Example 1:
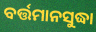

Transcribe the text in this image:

ବର୍ତ୍ତମାନସୁଦ୍ଧା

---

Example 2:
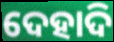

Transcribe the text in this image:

ଦେହାଦି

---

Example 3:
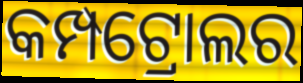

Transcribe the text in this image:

କମ୍ପଟ୍ରୋଲର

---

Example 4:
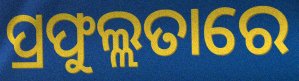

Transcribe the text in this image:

ପ୍ରଫୁଲ୍ଲତାରେ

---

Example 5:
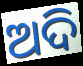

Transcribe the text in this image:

ଅଦି